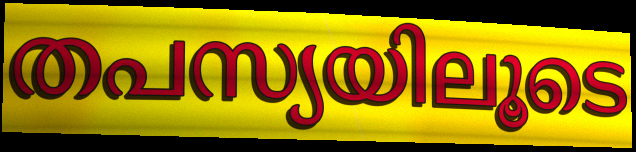
തപസ്യയിലൂടെ